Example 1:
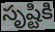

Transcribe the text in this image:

సృష్టికి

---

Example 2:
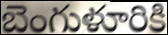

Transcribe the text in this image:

బెంగుళూరికి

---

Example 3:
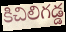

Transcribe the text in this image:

కిచిలిగడ్డ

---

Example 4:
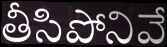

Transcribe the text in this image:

తీసిపోనివే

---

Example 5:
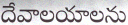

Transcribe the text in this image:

దేవాలయాలను